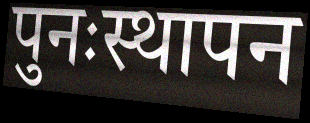
पुनःस्थापन